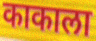
काकाला